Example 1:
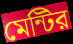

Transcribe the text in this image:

মেন্টির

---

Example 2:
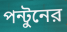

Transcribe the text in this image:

পন্টুনের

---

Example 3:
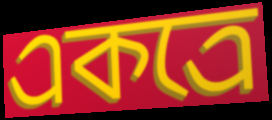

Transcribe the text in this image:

একত্রে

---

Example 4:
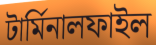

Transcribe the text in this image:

টার্মিনালফাইল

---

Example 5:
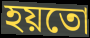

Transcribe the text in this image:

হয়তো